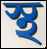
স্থ